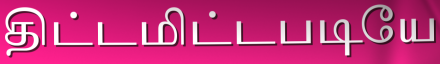
திட்டமிட்டபடியே